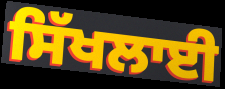
ਸਿੱਖਲਾਈ